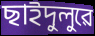
ছাইদুলুৱে